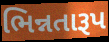
ભિન્નતારૂપ